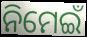
ନିମେଇଁ